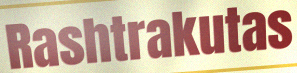
Rashtrakutas